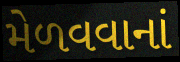
મેળવવાનાં